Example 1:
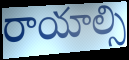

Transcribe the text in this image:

రాయాల్సి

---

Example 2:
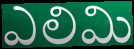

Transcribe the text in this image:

ఎలిమి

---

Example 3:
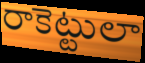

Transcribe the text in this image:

రాకెట్టులా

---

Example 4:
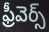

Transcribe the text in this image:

ఫ్రీవెర్స్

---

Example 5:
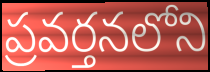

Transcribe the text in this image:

ప్రవర్తనలోని